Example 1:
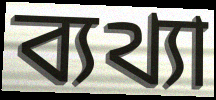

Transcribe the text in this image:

ব্যথ্যা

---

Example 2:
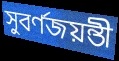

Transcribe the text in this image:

সুবর্ণজয়ন্তী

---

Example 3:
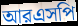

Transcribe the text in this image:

আরএসপি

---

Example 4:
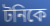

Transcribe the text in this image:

টনিকে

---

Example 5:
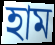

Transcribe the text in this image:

হাম